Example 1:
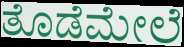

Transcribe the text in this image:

ತೊಡೆಮೇಲೆ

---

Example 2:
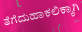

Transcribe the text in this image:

ತೆಗೆದುಹಾಕಲಿಕ್ಕಾಗಿ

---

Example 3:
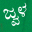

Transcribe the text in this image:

ಜ್ವಳ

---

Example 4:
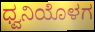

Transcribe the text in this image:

ಧ್ವನಿಯೊಳಗ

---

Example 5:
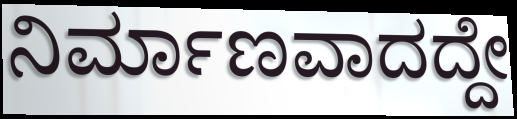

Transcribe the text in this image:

ನಿರ್ಮಾಣವಾದದ್ದೇ